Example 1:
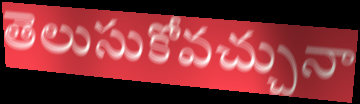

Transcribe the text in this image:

తెలుసుకోవచ్చునా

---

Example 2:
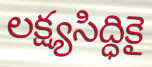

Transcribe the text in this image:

లక్ష్యసిద్ధికై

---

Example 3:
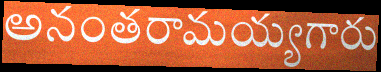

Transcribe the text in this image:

అనంతరామయ్యగారు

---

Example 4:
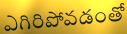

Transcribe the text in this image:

ఎగిరిపోవడంతో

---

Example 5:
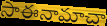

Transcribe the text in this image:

సాఈనామాచా